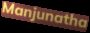
Manjunatha